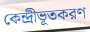
কেন্দ্রীভূতকরণ